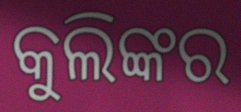
କୁଲିଙ୍କର